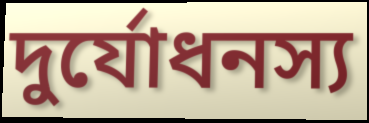
দুর্যোধনস্য